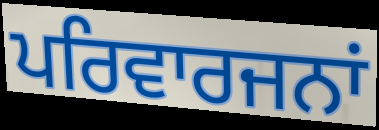
ਪਰਿਵਾਰਜਨਾਂ